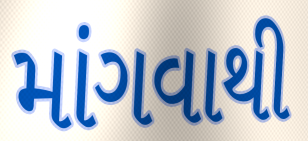
માંગવાથી